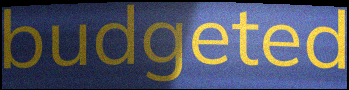
budgeted